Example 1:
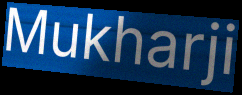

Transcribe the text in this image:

Mukharji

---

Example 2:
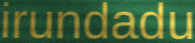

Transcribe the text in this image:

irundadu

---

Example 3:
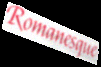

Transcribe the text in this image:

Romanesque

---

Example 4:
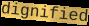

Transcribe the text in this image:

dignified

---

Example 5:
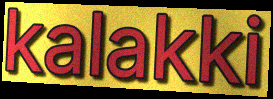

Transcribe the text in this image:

kalakki